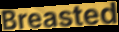
Breasted